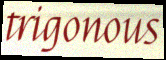
trigonous